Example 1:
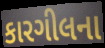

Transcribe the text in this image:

કારગીલના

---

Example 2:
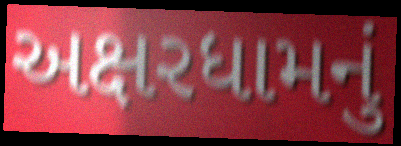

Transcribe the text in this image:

અક્ષરધામનું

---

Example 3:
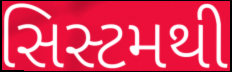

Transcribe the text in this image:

સિસ્ટમથી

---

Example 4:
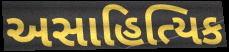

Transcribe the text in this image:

અસાહિત્યિક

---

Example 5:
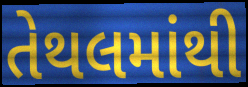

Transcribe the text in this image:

તેથલમાંથી